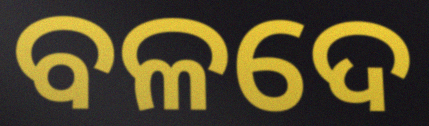
ବଳଦେ